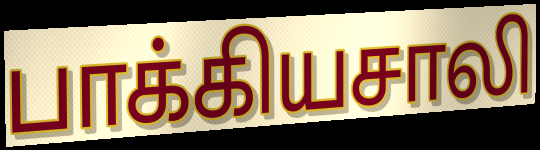
பாக்கியசாலி